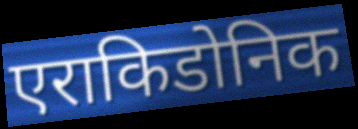
एराकिडोनिक